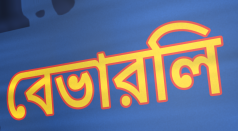
বেভারলি